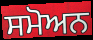
ਸਮੋਅਨ